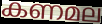
കണമല